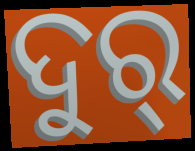
ଦୁର୍